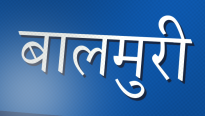
बालमुरी